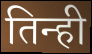
तिन्ही